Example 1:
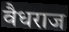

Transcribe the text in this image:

वैधराज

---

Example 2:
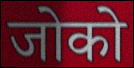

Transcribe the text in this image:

जोको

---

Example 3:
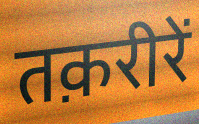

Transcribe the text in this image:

तक़रीरें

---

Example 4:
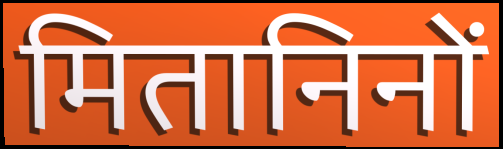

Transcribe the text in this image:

मितानिनों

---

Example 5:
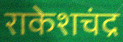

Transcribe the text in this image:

राकेशचंद्र